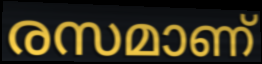
രസമാണ്